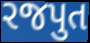
રજપુત